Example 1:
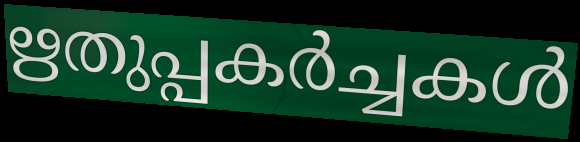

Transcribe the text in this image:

ഋതുപ്പകർച്ചകൾ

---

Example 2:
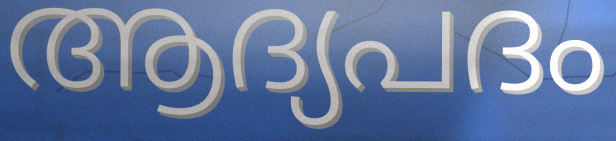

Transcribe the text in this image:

ആദ്യപദം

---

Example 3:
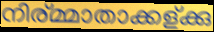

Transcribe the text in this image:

നിര്മ്മാതാക്കള്ക്കു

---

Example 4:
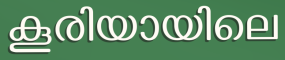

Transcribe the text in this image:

കൂരിയായിലെ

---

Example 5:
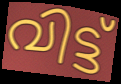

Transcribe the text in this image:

വിട്ട്